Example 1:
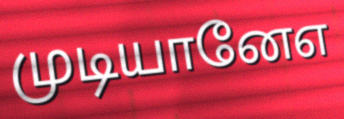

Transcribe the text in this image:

முடியானேஎ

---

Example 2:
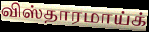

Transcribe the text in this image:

விஸ்தாரமாய்க்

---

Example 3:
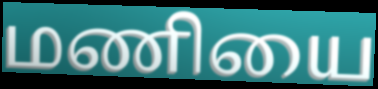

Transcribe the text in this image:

மணியை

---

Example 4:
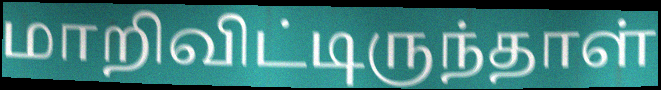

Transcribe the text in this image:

மாறிவிட்டிருந்தாள்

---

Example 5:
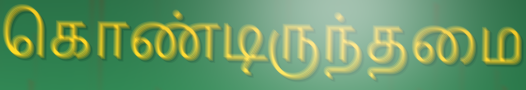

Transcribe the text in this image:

கொண்டிருந்தமை